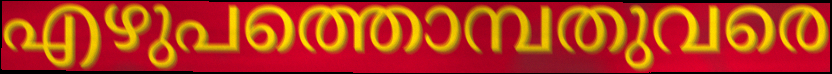
എഴുപത്തൊമ്പതുവരെ